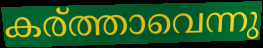
കര്ത്താവെന്നു